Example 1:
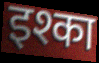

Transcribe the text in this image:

इश्का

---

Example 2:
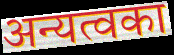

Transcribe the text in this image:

अन्यत्वका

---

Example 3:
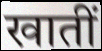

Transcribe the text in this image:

खातीं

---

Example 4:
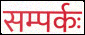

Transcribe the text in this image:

सम्पर्कः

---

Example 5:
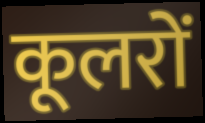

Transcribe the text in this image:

कूलरों